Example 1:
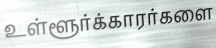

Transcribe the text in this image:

உள்ளூர்க்காரர்களை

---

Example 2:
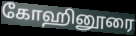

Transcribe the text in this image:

கோஹினூரை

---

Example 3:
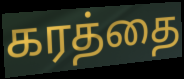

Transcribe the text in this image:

கரத்தை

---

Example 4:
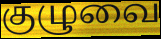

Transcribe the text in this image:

குழுவை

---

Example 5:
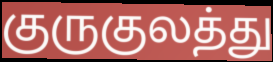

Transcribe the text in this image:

குருகுலத்து